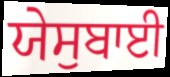
ਯੇਸੁਬਾਈ